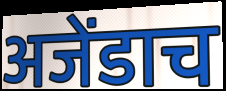
अजेंडाच